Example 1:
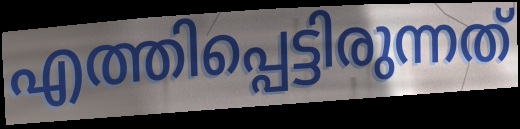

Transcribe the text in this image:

എത്തിപ്പെട്ടിരുന്നത്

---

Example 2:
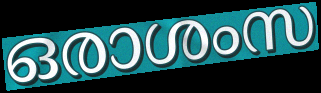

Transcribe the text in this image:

ഒരാശംസ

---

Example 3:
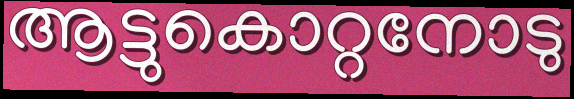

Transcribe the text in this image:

ആട്ടുകൊറ്റനോടു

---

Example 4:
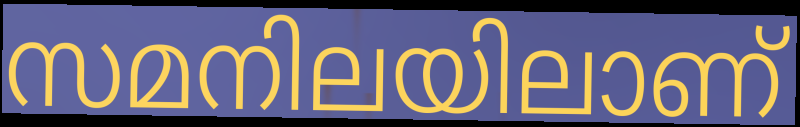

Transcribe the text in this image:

സമനിലയിലാണ്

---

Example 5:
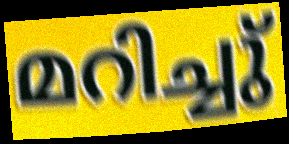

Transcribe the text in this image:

മറിച്ചു്